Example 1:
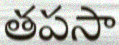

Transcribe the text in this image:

తపసా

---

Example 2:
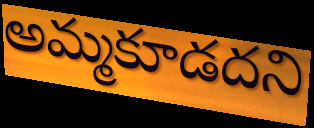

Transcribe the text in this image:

అమ్మకూడదని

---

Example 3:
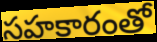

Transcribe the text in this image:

సహకారంతో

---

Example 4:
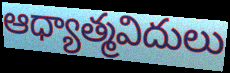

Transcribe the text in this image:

ఆధ్యాత్మవిదులు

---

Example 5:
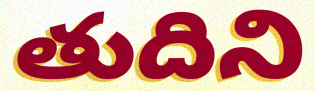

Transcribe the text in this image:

తుదిని